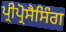
ਪ੍ਰੀਪ੍ਰੋਸੈਸਿੰਗ